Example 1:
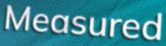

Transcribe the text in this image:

Measured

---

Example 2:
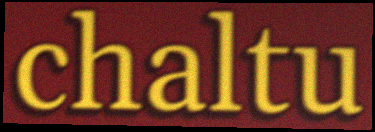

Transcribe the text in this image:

chaltu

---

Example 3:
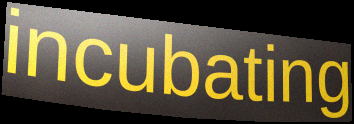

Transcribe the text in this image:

incubating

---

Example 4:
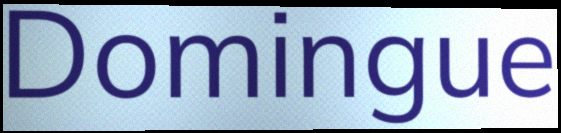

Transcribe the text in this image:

Domingue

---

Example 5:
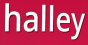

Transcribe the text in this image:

halley